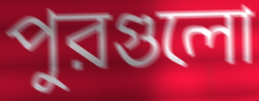
পুরগুলো